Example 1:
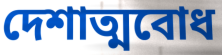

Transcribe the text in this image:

দেশাত্মবোধ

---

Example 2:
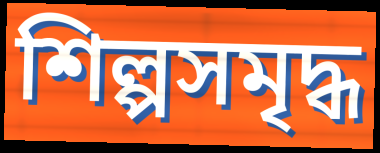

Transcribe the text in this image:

শিল্পসমৃদ্ধ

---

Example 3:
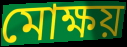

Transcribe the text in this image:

মোক্ষয়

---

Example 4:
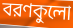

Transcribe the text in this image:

বরণকুলো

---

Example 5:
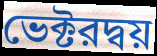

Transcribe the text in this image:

ভেক্টরদ্বয়